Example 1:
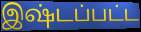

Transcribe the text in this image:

இஷ்டப்பட்ட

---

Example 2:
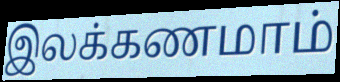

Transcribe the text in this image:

இலக்கணமாம்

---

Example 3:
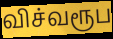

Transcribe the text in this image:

விச்வரூப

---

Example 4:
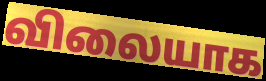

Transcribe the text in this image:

விலையாக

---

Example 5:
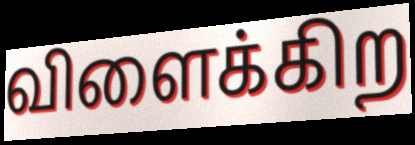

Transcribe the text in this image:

விளைக்கிற